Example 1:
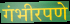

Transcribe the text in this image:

गंभीरपणे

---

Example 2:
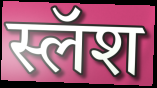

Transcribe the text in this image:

स्लॅश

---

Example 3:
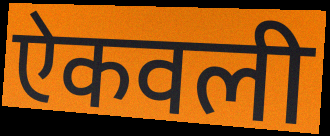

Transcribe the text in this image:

ऐकवली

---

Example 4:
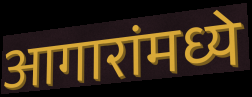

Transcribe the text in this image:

आगारांमध्ये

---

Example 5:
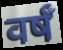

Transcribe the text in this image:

वर्षँ